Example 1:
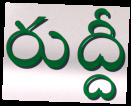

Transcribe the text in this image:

రుద్దీ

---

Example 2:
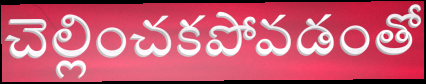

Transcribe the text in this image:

చెల్లించకపోవడంతో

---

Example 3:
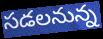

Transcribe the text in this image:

సడలనున్న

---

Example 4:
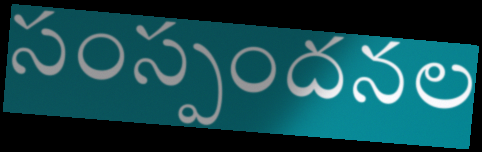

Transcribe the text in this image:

సంస్పందనల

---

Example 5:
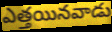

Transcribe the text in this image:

ఎత్తయినవాడు